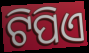
ଟିପିଏ